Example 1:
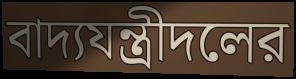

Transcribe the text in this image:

বাদ্যযন্ত্রীদলের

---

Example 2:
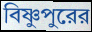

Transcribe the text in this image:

বিষ্ণুপুরের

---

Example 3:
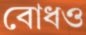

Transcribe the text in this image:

বোধও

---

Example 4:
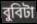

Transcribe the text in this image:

বুবিটা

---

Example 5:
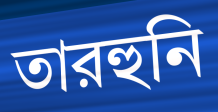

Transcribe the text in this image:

তারহুনি